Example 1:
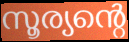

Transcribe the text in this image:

സൂര്യന്റെ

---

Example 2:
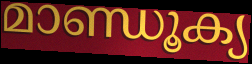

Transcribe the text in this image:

മാണ്ഡൂക്യ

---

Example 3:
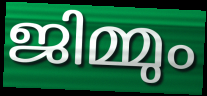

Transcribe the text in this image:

ജിമ്മും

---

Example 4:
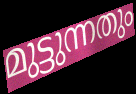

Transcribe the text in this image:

മുട്ടുന്നതും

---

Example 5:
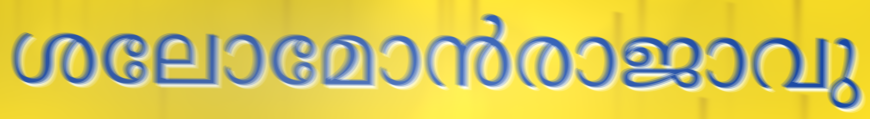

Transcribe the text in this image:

ശലോമോൻരാജാവു